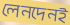
লেনদেনই